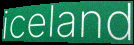
iceland